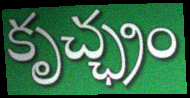
కృచ్ఛ్రం